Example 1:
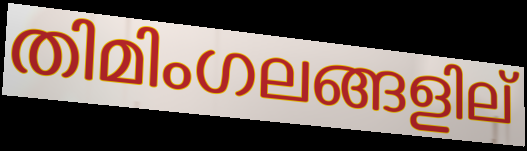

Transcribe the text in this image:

തിമിംഗലങ്ങളില്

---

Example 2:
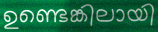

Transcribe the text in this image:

ഉണ്ടെങ്കിലായി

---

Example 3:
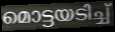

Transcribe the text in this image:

മൊട്ടയടിച്ച്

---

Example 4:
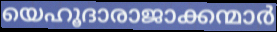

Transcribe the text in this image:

യെഹൂദാരാജാക്കന്മാർ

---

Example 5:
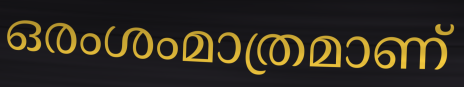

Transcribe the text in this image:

ഒരംശംമാത്രമാണ്